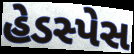
હેડસ્પેસ